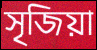
সৃজিয়া